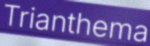
Trianthema